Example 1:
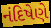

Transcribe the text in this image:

નંદિષેણે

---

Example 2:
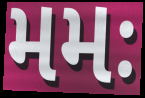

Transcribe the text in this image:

મમઃ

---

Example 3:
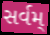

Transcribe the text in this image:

સર્વમ્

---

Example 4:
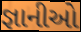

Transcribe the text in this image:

જ્ઞાનીઓ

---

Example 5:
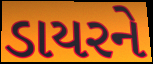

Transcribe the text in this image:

ડાયરને